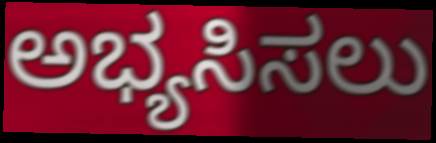
ಅಭ್ಯಸಿಸಲು